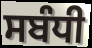
ਸਬੰਧੀ